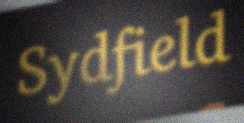
Sydfield